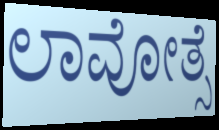
ಲಾವೋತ್ಸೆ